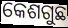
କେଶଗୁଛ